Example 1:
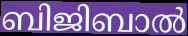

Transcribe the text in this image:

ബിജിബാൽ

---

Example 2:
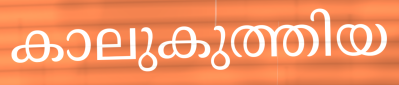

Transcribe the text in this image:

കാലുകുത്തിയ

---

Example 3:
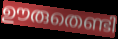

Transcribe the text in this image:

ഊരുതെണ്ടി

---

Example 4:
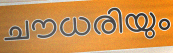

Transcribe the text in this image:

ചൗധരിയും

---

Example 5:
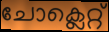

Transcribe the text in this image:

ചോക്ലെറ്റ്